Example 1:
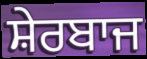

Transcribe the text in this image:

ਸ਼ੇਰਬਾਜ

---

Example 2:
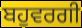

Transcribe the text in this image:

ਬਹੁਵਰਗੀ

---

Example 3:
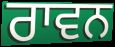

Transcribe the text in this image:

ਰਾਵਨ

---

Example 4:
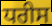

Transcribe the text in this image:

ਧਰੀਸ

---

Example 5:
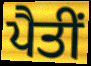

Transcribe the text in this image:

ਪੈਤੀਂ